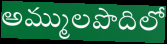
అమ్ములపొదిలో